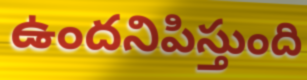
ఉందనిపిస్తుంది